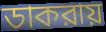
ডাকরায়